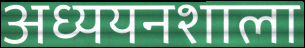
अध्ययनशाला